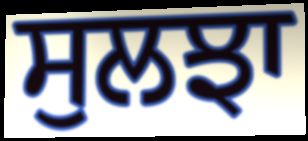
ਸੁਲਝਾ